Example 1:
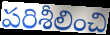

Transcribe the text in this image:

పరిశీలించి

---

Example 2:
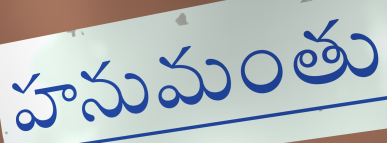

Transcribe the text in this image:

హనుమంతు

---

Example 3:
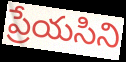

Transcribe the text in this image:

ప్రేయసిని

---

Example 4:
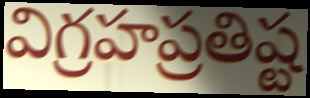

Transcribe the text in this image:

విగ్రహప్రతిష్ట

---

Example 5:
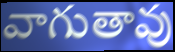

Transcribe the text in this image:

వాగుతావు